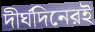
দীর্ঘদিনেরই